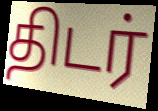
திடர்